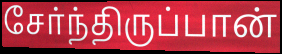
சேர்ந்திருப்பான்